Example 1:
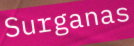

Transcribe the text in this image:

Surganas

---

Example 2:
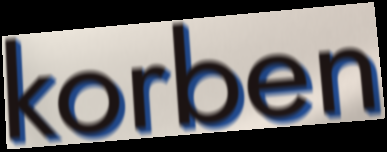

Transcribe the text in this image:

korben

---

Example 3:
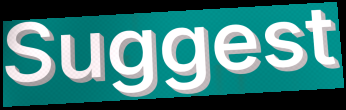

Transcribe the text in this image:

Suggest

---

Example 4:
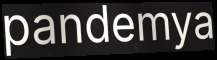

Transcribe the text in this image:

pandemya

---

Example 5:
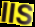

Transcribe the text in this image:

IIS